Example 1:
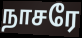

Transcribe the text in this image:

நாசரே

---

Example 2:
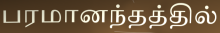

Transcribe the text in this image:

பரமானந்தத்தில்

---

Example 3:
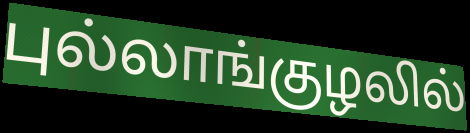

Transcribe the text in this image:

புல்லாங்குழலில்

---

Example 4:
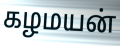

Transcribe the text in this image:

கழமயன்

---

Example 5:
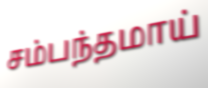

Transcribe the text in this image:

சம்பந்தமாய்